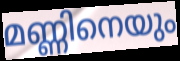
മണ്ണിനെയും